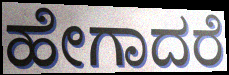
ಹೇಗಾದರೆ